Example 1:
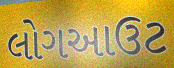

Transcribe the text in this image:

લોગઆઉટ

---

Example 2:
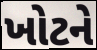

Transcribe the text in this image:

ખોટને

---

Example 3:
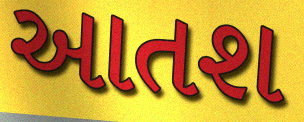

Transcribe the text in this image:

આતશ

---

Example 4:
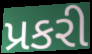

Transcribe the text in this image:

પ્રકરી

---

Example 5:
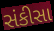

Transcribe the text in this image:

સંકીસા